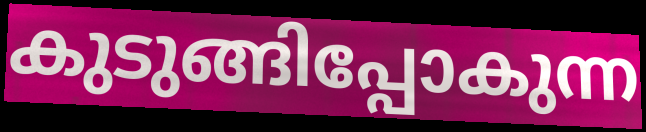
കുടുങ്ങിപ്പോകുന്ന